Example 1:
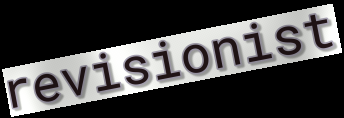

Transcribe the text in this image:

revisionist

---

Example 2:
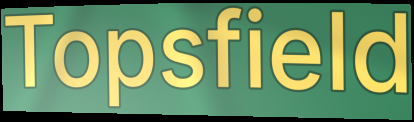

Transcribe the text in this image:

Topsfield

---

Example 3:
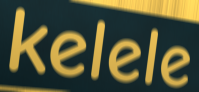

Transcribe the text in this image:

kelele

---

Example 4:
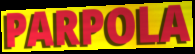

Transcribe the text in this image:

PARPOLA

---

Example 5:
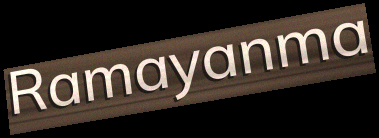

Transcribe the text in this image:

Ramayanma